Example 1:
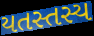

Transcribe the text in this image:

યતસ્તસ્ય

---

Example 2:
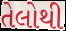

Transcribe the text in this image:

તેલોથી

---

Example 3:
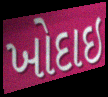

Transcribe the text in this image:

ખોદાઇ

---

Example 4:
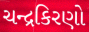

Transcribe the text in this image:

ચન્દ્રકિરણો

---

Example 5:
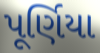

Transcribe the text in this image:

પૂર્ણિયા